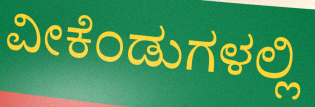
ವೀಕೆಂಡುಗಳಲ್ಲಿ